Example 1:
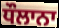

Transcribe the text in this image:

ਧੌਲਾਨਾ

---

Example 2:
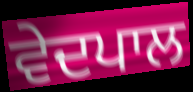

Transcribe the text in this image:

ਵੇਦਪਾਲ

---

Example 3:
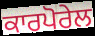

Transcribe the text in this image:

ਕਾਰਪੋਰੇਲ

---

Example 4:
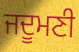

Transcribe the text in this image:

ਜਦੂਮਣੀ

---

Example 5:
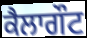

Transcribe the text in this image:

ਕੈਲਾਗੌਟ